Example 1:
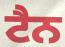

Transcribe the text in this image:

ਟੈਨ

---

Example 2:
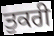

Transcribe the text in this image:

ਤੁਕਰੀ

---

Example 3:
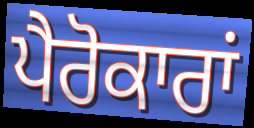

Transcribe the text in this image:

ਪੈਰੋਕਾਰਾਂ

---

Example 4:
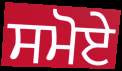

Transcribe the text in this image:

ਸਮੋਏ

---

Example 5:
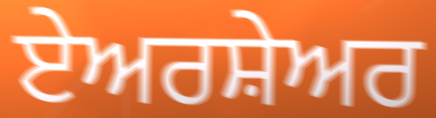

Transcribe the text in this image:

ਏਅਰਸ਼ੇਅਰ